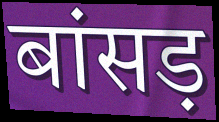
बांसड़